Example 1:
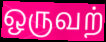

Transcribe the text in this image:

ஒருவற்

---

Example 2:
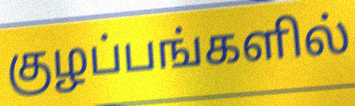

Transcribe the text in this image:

குழப்பங்களில்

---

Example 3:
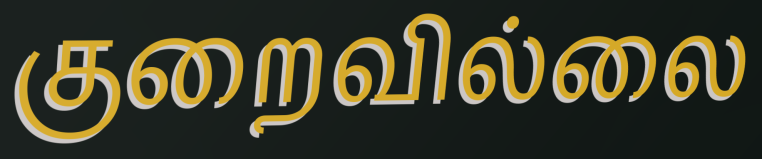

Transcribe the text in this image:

குறைவில்லை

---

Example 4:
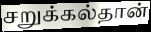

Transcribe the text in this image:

சறுக்கல்தான்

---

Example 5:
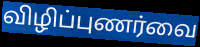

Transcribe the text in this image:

விழிப்புணர்வை